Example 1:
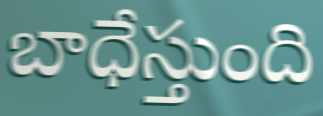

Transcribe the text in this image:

బాధేస్తుంది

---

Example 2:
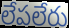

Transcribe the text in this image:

లేపలేరు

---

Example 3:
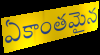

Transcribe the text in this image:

ఏకాంతమైన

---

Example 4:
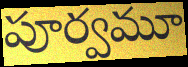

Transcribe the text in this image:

పూర్వమూ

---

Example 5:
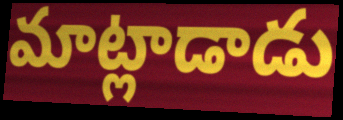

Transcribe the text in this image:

మాట్లాడాడు